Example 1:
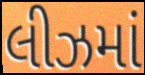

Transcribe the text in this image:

લીઝમાં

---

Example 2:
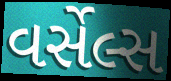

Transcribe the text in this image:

વર્સેલ્સ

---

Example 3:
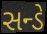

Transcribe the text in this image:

સન્ડે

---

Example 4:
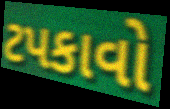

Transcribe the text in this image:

ટપકાવો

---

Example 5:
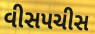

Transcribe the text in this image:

વીસપચીસ